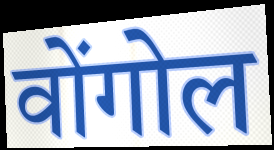
वोंगोल